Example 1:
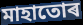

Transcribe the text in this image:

মাহাতোৰ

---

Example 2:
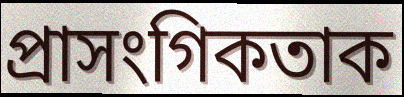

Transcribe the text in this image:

প্ৰাসংগিকতাক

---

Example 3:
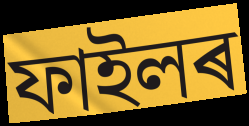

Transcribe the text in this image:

ফাইলৰ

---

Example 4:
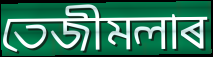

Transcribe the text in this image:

তেজীমলাৰ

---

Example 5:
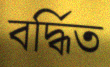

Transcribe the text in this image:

বৰ্দ্ধিত